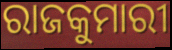
ରାଜକୁମାରୀ